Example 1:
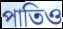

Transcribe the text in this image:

পাতিও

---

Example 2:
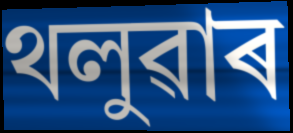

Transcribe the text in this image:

থলুৱাৰ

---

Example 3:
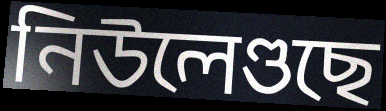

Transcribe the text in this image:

নিউলেণ্ডছে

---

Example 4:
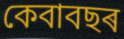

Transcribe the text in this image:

কেবাবছৰ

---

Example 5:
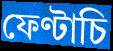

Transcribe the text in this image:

ফেণ্টাচি